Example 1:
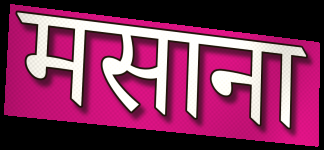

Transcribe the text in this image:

मसाना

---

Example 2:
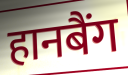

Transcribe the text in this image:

हानबैंग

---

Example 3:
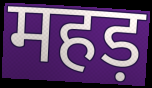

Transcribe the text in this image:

महड़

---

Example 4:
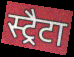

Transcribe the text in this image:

स्ट्रैटा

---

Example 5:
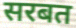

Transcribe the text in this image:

सरबत